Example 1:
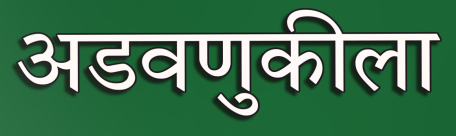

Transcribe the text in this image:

अडवणुकीला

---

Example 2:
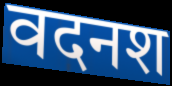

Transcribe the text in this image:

वदनश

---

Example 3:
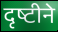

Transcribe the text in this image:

दृष्‍टीने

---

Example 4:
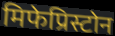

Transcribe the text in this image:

मिफेप्रिस्टोन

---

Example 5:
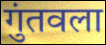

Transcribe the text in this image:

गुंतवला